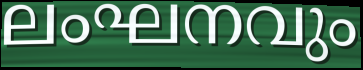
ലംഘനവും